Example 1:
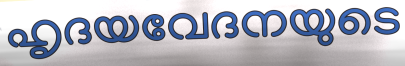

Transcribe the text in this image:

ഹൃദയവേദനയുടെ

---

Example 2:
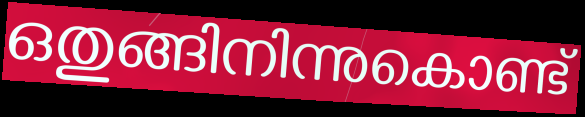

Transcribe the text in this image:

ഒതുങ്ങിനിന്നുകൊണ്ട്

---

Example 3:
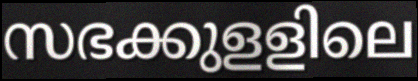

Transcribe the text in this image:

സഭക്കുളളിലെ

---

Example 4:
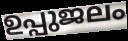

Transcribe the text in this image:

ഉപ്പുജലം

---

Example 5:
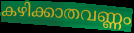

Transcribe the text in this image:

കഴിക്കാതവണ്ണം